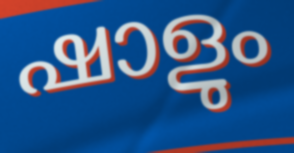
ഷാളും